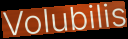
Volubilis